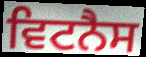
ਵਿਟਨੈਸ